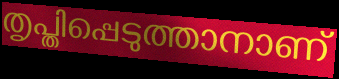
തൃപ്തിപ്പെടുത്താനാണ്